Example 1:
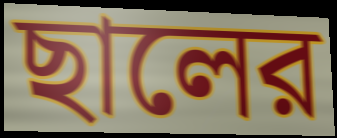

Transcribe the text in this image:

ছালের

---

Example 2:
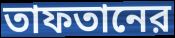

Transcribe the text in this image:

তাফতানের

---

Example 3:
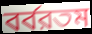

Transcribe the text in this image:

বর্বরতম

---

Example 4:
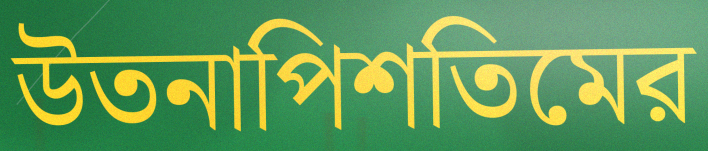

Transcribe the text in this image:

উতনাপিশতিমের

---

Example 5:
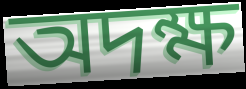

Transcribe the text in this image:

অদক্ষ